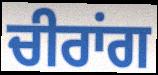
ਚੀਰਾਂਗ